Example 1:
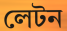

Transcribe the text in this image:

লেটন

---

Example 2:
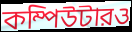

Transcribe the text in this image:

কম্পিউটারও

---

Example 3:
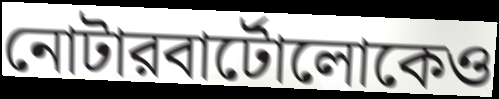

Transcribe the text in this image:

নোটারবার্টোলোকেও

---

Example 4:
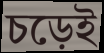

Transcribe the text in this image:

চড়েই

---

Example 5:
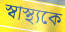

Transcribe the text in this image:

স্বাস্থ্যকে